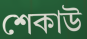
শেকাউ